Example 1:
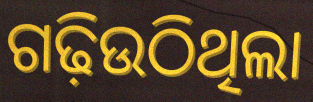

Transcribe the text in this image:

ଗଢ଼ିଉଠିଥିଲା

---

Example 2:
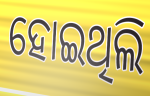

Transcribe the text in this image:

ହୋଇଥିଲି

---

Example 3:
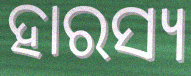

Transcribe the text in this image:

ହାରସ୍ୟ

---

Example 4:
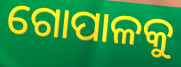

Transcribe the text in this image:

ଗୋପାଳକୁ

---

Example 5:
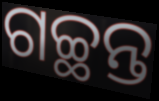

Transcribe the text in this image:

ଗଚ୍ଛନ୍ତ